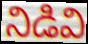
నిడివి